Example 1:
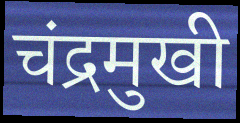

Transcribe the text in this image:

चंद्रमुखी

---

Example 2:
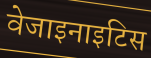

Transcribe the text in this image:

वेजाइनाइटिस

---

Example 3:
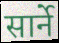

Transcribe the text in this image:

सार्ने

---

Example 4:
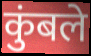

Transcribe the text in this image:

कुंबले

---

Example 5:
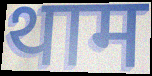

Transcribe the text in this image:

थाम